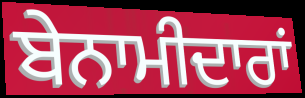
ਬੇਨਾਮੀਦਾਰਾਂ